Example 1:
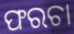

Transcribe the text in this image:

ଫରଚା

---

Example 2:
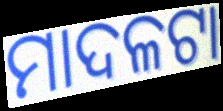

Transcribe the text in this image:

ମାଦଳଟା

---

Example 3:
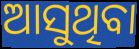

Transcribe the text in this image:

ଆସୁଥିବା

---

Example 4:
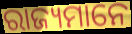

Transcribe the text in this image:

ରାଜ୍ୟମାନେ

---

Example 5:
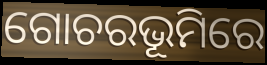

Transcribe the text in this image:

ଗୋଚରଭୂମିରେ